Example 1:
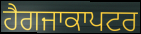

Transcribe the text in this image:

ਹੈਗਜਾਕਾਪਟਰ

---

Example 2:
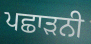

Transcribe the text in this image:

ਪਛਾੜਨੀ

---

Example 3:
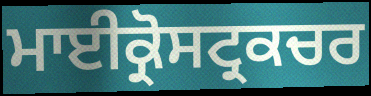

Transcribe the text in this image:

ਮਾਈਕ੍ਰੋਸਟ੍ਰਕਚਰ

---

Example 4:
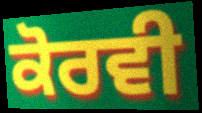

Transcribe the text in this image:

ਕੋਰਵੀ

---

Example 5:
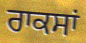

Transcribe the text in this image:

ਰਾਕਸਾਂ